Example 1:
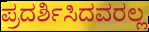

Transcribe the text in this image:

ಪ್ರದರ್ಶಿಸಿದವರಲ್ಲ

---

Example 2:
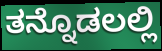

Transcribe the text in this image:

ತನ್ನೊಡಲಲ್ಲಿ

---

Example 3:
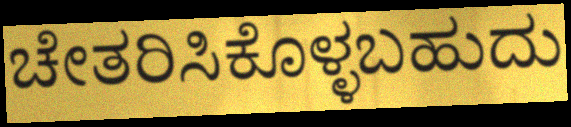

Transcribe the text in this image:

ಚೇತರಿಸಿಕೊಳ್ಳಬಹುದು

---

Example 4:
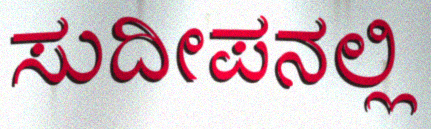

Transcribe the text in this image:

ಸುದೀಪನಲ್ಲಿ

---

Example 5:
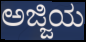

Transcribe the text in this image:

ಅಜ್ಜಿಯ